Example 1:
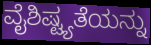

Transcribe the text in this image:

ವೈಶಿಷ್ಟ್ಯತೆಯನ್ನು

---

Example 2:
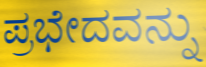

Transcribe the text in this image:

ಪ್ರಭೇದವನ್ನು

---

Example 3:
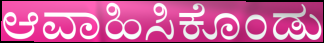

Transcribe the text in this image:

ಆವಾಹಿಸಿಕೊಂಡು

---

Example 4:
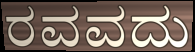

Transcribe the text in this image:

ರವವದು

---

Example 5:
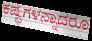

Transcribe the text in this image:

ಕಷ್ಟಗಳನ್ನಾದರೂ